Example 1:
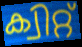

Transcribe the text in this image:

ക്വിറ്റ്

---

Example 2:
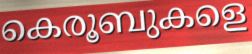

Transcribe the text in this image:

കെരൂബുകളെ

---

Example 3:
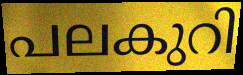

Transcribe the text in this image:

പലകുറി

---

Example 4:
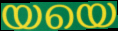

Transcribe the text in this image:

യയെ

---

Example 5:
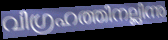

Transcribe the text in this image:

വിഗ്രഹത്തിനല്ലിന്നു